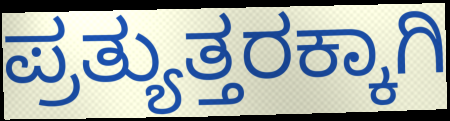
ಪ್ರತ್ಯುತ್ತರಕ್ಕಾಗಿ